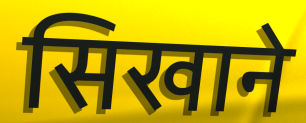
सिखाने